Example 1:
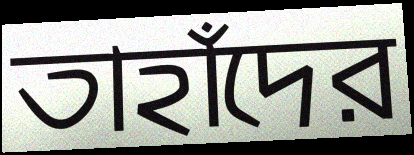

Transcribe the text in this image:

তাহাঁদের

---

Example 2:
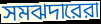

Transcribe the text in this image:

সমঝদারেরা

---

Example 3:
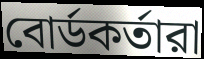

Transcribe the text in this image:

বোর্ডকর্তারা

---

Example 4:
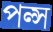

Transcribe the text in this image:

পল্স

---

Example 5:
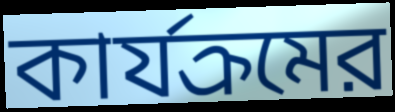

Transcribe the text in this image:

কার্যক্রমের